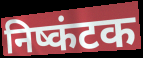
निष्कंटक